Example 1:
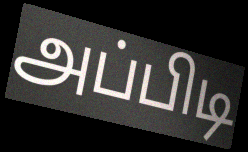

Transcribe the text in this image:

அப்பிடி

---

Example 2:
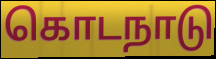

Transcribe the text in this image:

கொடநாடு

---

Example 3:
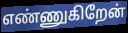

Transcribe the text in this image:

எண்ணுகிறேன்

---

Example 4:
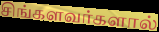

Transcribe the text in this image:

சிங்களவர்களால்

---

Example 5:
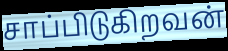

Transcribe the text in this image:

சாப்பிடுகிறவன்